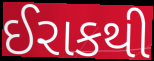
ઈરાકથી